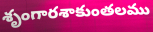
శృంగారశాకుంతలము